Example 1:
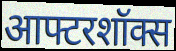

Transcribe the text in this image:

आफ्टरशॉक्स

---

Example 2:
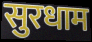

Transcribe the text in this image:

सुरधाम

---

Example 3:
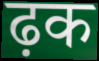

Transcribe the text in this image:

ढ़क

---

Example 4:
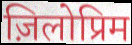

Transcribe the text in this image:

ज़िलोप्रिम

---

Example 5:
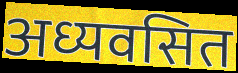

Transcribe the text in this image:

अध्यवसित